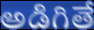
అడిగితే